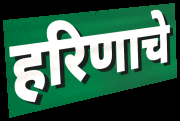
हरिणाचे